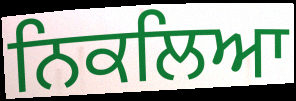
ਨਿਕਲਿਆ